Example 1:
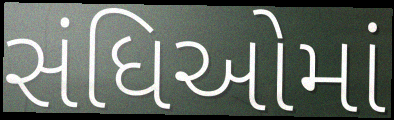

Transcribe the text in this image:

સંધિઓમાં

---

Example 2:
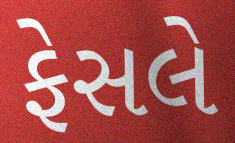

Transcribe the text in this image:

ફેસલે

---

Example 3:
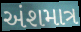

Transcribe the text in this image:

અંશમાત્ર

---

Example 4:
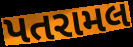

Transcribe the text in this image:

પતરામલ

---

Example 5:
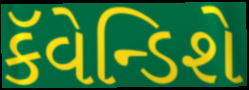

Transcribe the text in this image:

કૅવેન્ડિશે